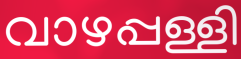
വാഴപ്പള്ളി